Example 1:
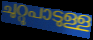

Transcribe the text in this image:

ചുറ്റുപാടുള്ള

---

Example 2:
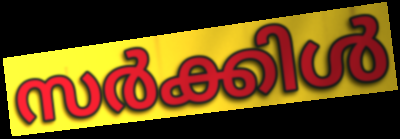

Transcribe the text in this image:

സർക്കിൾ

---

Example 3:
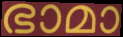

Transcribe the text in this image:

ഭാമാ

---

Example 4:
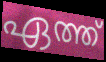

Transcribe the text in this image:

ഏത്ത്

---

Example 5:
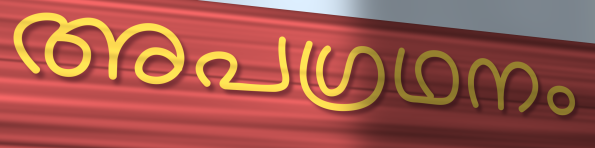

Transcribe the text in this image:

അപഗ്രഥനം